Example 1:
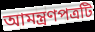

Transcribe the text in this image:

আমন্ত্রণপত্রটি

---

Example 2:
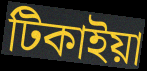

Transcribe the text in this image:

টিকাইয়া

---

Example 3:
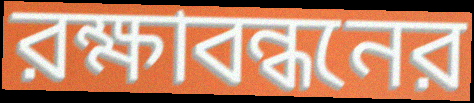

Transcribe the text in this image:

রক্ষাবন্ধনের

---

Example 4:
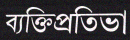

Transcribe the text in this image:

ব্যক্তিপ্রতিভা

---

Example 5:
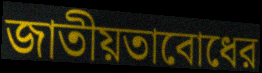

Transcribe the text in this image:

জাতীয়তাবোধের